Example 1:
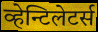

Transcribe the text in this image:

व्हेन्टिलेटर्स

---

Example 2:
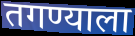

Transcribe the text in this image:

तगण्याला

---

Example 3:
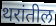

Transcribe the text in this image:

थरांतील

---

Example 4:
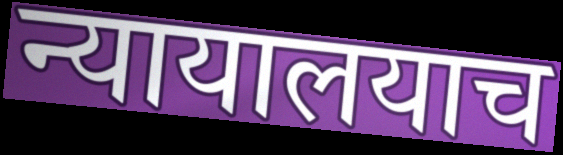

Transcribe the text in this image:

न्यायालयाच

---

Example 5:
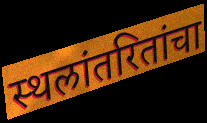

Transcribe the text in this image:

स्थलांतरितांचा